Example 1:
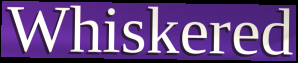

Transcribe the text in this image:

Whiskered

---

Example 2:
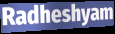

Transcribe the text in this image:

Radheshyam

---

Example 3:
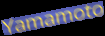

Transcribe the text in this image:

Yamamoto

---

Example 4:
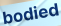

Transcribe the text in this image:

bodied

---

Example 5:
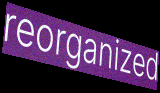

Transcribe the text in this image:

reorganized